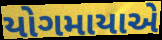
યોગમાયાએ